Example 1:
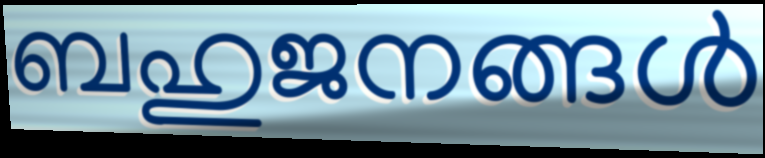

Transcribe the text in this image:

ബഹുജനങ്ങൾ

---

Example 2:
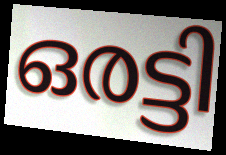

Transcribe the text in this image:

ഒരട്ടി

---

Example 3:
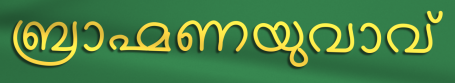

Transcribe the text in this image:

ബ്രാഹ്മണയുവാവ്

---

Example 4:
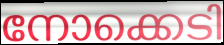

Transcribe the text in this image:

നോക്കെടി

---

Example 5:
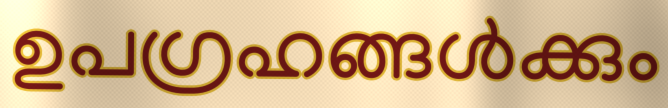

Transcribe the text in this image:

ഉപഗ്രഹങ്ങൾക്കും